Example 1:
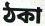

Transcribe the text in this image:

ঠকা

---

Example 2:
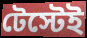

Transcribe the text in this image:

টেস্টেই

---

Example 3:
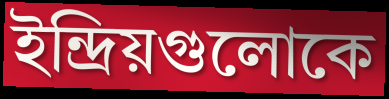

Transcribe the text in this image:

ইন্দ্রিয়গুলোকে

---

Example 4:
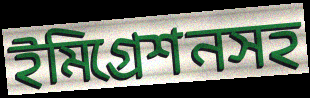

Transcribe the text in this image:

ইমিগ্রেশনসহ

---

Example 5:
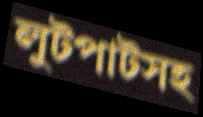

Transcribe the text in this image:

লুটপাটসহ